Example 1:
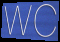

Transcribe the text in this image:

WC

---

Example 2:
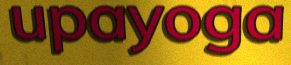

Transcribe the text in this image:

upayoga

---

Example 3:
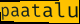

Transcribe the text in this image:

paatalu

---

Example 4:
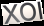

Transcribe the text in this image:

XOI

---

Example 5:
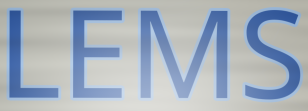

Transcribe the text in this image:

LEMS